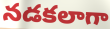
నడకలాగా